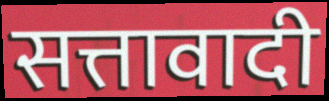
सत्तावादी